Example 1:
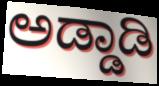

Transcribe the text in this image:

ಅಡ್ಡಾಡಿ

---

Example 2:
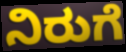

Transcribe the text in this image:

ನಿರುಗೆ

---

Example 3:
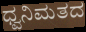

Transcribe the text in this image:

ಧ್ವನಿಮತದ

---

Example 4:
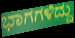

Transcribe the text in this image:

ಭಾಗಗಳಿದ್ದು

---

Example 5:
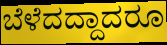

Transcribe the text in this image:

ಬೆಳೆದದ್ದಾದರೂ